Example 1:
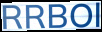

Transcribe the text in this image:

RRBOl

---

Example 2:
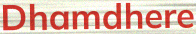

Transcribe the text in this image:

Dhamdhere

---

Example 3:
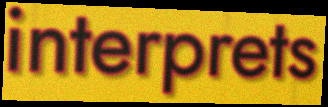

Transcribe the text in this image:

interprets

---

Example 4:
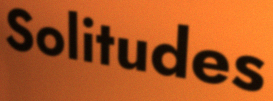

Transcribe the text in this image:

Solitudes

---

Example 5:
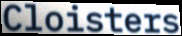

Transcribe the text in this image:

Cloisters